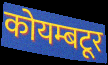
कोयम्‍बटूर